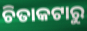
ଚିତାକଟାରୁ